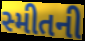
સ્મીતની